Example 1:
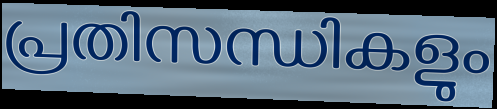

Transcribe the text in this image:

പ്രതിസന്ധികളും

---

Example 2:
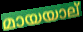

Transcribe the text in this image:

മായയാല്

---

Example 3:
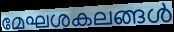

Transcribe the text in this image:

മേഘശകലങ്ങൾ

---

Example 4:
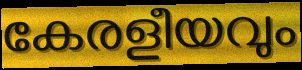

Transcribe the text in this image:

കേരളീയവും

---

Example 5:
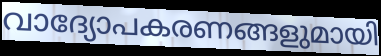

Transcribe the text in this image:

വാദ്യോപകരണങ്ങളുമായി